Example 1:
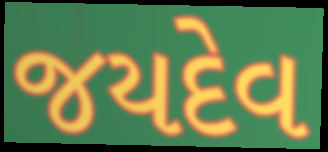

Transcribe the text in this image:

જયદેવ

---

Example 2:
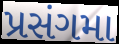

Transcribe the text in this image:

પ્રસંગમા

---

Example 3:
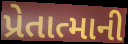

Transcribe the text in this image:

પ્રેતાત્માની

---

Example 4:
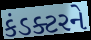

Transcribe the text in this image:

કંડક્ટરને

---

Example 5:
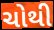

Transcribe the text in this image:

ચોથી